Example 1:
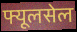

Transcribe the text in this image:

फ्यूलसेल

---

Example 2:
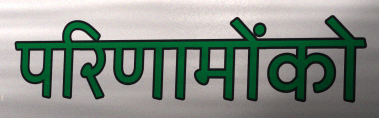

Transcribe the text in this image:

परिणामोंको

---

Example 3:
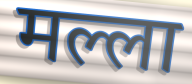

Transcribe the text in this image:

मल्‍ला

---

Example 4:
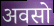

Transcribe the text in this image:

अवसो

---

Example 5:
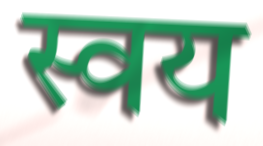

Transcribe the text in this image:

स्वय